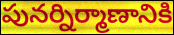
పునర్నిర్మాణానికి